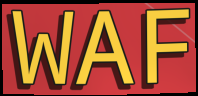
WAF